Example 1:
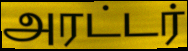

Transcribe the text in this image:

அரட்டர்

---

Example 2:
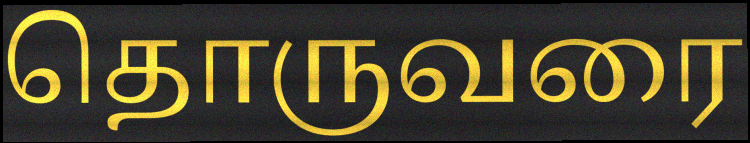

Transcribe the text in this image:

தொருவரை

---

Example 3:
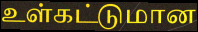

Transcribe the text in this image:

உள்கட்டுமான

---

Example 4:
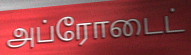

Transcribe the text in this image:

அப்ரோடைட்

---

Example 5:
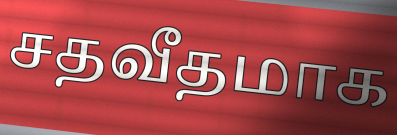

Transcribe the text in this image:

சதவீதமாக